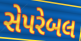
સેપરેબલ